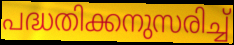
പദ്ധതിക്കനുസരിച്ച്